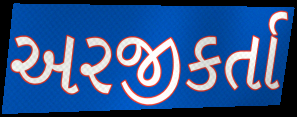
અરજીકર્તા